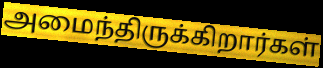
அமைந்திருக்கிறார்கள்